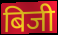
बिजी